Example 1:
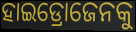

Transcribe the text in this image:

ହାଇଡ୍ରୋଜେନକୁ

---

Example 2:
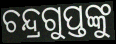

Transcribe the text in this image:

ଚନ୍ଦ୍ରଗୁପ୍ତଙ୍କୁ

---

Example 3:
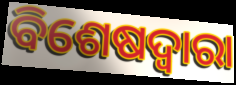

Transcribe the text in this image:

ବିଶେଷଦ୍ଵାରା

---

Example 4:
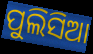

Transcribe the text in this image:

ପୁଲିସିଆ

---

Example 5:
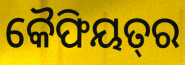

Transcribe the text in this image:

କୈଫିୟତ୍‌ର